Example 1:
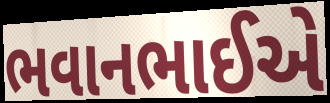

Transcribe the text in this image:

ભવાનભાઈએ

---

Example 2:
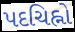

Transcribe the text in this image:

પદચિહ્નો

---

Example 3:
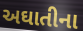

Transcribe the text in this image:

અઘાતીના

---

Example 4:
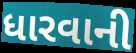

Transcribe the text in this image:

ધારવાની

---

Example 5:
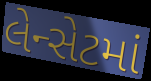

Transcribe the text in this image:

લેન્સેટમાં